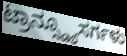
ಟ್ರಾನ್ಸ್ಡ್ಯೂಸರ್ಗಳು